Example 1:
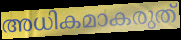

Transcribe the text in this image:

അധികമാകരുത്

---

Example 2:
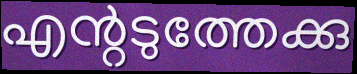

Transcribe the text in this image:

എന്റടുത്തേക്കു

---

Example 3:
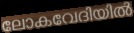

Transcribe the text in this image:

ലോകവേദിയിൽ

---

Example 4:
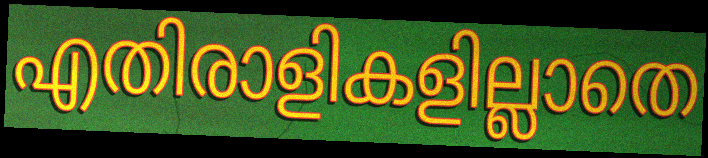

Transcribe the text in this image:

എതിരാളികളില്ലാതെ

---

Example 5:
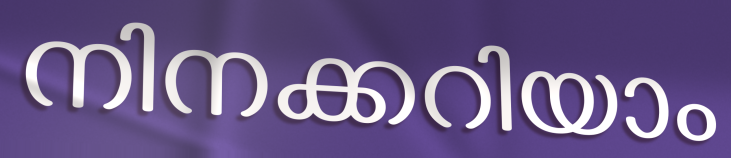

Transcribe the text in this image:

നിനക്കറിയാം